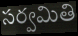
సర్వమితి